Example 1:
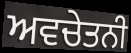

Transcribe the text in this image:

ਅਵਚੇਤਨੀ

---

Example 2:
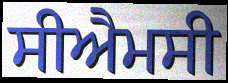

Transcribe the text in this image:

ਸੀਐਮਸੀ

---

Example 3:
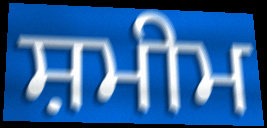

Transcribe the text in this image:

ਸ਼ਮੀਮ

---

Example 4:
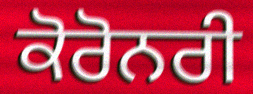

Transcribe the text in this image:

ਕੋਰੋਨਰੀ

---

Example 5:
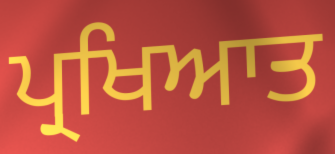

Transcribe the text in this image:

ਪ੍ਰਖਿਆਤ